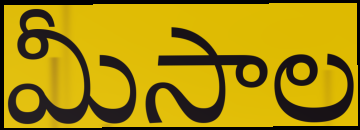
మీసాల